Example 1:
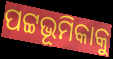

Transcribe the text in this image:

ପଟ୍ଟଭୂମିକାକୁ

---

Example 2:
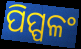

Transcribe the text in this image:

ପିପ୍ପଳଂ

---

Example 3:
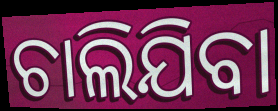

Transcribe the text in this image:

ଚାଲିଯିବା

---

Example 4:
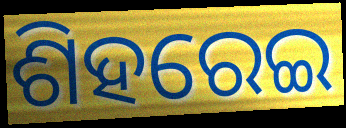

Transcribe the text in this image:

ଶିହରେଇ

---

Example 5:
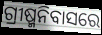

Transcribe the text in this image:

ଗ୍ରୀଷ୍ମନିବାସରେ